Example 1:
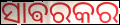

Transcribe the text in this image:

ସାଵରକର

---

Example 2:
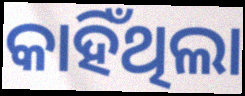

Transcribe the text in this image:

କାହିଁଥିଲା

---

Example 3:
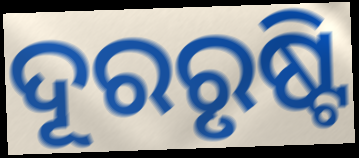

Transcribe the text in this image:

ଦୂରରୃଷ୍ଟି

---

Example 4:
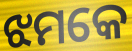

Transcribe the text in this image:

ଝମକେ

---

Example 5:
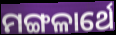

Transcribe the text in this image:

ମଙ୍ଗଳାର୍ଥେ